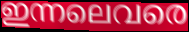
ഇന്നലെവരെ